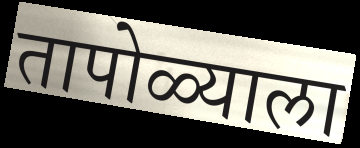
तापोळ्याला